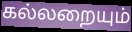
கல்லறையும்